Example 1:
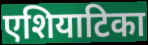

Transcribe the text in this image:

एशियाटिका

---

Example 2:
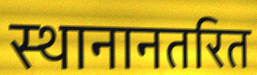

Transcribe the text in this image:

स्थानानतरित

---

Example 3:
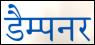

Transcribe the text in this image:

डैम्पनर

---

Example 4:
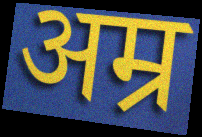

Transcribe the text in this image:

अम्र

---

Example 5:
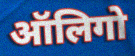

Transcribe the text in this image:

ऑलिगो